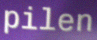
pilen